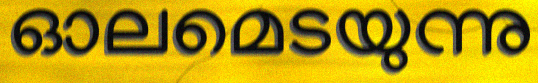
ഓലമെടയുന്നു